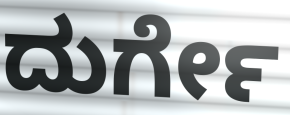
ದುರ್ಗೇ